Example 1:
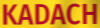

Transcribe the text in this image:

KADACH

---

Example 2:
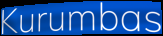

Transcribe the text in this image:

Kurumbas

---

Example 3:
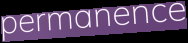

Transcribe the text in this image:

permanence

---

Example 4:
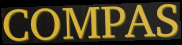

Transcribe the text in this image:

COMPAS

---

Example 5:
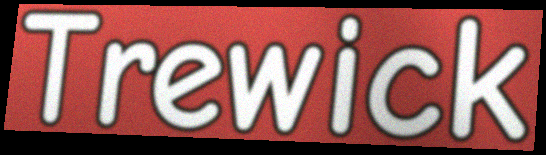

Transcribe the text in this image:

Trewick